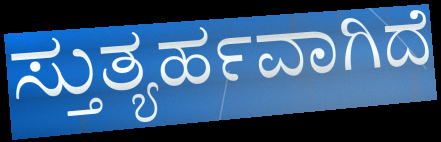
ಸ್ತುತ್ಯರ್ಹವಾಗಿದೆ